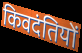
किवदंतियों